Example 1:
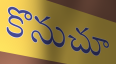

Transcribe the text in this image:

కొనుచూ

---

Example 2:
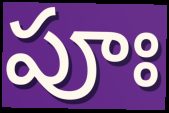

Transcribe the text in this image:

పూః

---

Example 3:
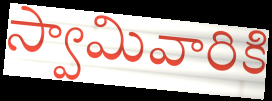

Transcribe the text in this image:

స్వామివారికి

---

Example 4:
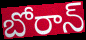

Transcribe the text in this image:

బోరాన్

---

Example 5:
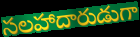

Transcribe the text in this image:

సలహాదారుడుగా